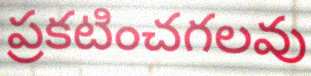
ప్రకటించగలవు